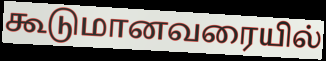
கூடுமானவரையில்